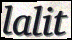
lalit